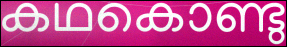
കഥകൊണ്ടു